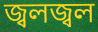
জ্বলজ্বল